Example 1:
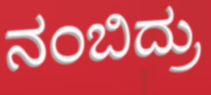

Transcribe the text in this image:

ನಂಬಿದ್ರು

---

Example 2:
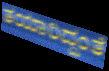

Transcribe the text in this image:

ತಯಾರಿದ್ದಂತೆ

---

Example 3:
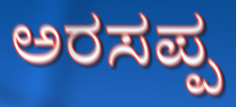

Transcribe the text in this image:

ಅರಸಪ್ಪ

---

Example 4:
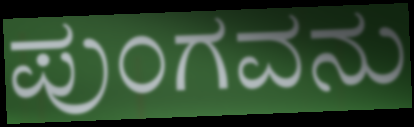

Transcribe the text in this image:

ಪುಂಗವನು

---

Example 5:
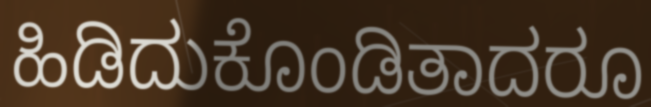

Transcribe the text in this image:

ಹಿಡಿದುಕೊಂಡಿತಾದರೂ